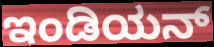
ಇಂಡಿಯನ್